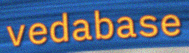
vedabase